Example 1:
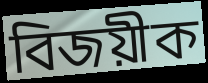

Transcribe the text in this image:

বিজয়ীক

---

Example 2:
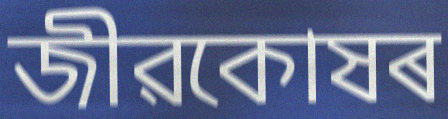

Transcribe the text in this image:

জীৱকোষৰ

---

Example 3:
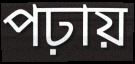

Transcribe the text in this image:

পঢ়ায়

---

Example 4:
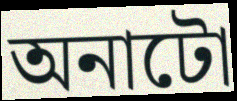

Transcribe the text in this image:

অনাটো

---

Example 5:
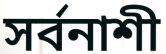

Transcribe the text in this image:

সৰ্বনাশী